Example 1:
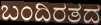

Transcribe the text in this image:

ಬಂದಿರತದ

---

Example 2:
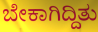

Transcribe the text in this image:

ಬೇಕಾಗಿದ್ದಿತು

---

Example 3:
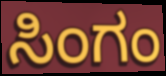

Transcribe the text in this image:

ಸಿಂಗಂ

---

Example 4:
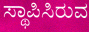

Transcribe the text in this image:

ಸ್ಥಾಪಿಸಿರುವ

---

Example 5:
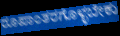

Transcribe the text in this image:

ರೂಪಾಂತರಗೊಳ್ಳಬೇಕು